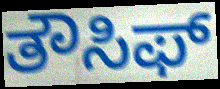
ತೌಸಿಫ್